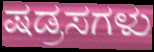
ಷಡ್ರಸಗಳು